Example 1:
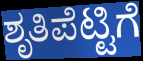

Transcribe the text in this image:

ಶೃತಿಪೆಟ್ಟಿಗೆ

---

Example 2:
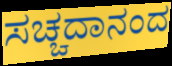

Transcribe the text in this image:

ಸಚ್ಚದಾನಂದ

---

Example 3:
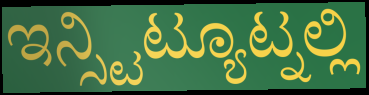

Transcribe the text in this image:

ಇನ್ಸ್ಟಿಟ್ಯೂಟ್ನಲ್ಲಿ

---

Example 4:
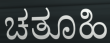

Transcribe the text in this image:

ಚತೂಹಿ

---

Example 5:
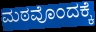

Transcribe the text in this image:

ಮಠವೊಂದಕ್ಕೆ